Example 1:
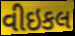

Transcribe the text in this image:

વીઇકલ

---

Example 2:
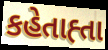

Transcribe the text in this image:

કહેતાહ્તા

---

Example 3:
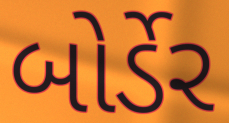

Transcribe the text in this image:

બોર્ડેર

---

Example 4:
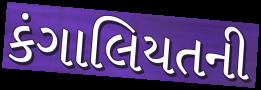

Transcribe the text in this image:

કંગાલિયતની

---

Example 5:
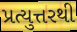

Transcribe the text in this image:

પ્રત્યુત્તરથી